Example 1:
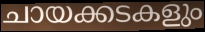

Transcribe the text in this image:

ചായക്കടകളും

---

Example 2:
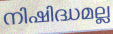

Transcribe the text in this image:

നിഷിദ്ധമല്ല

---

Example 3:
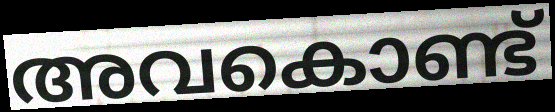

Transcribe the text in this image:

അവകൊണ്ട്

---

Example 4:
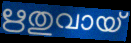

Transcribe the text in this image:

ഋതുവായ്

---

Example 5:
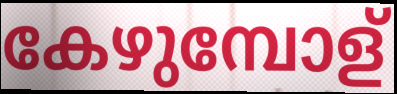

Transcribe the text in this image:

കേഴുമ്പോള്